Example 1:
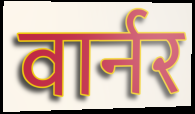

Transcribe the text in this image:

वार्नर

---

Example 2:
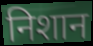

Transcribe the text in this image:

निशान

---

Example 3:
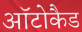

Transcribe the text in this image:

ऑटोकैड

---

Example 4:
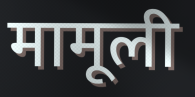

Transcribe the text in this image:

मामूली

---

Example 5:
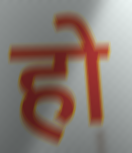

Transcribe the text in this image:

हो